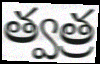
త్వత్ర